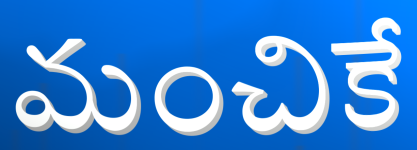
మంచికే